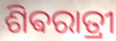
ଶିଵରାତ୍ରୀ